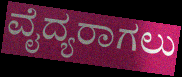
ವೈದ್ಯರಾಗಲು